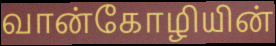
வான்கோழியின்